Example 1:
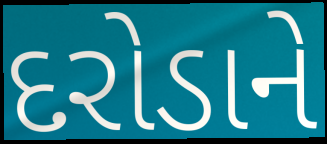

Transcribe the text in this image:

દરોડાને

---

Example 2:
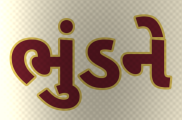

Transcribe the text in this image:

ભુંડને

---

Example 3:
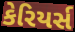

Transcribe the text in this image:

કેરિયર્સ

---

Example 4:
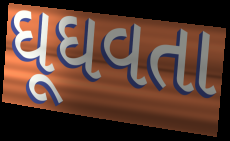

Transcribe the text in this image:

ઘૂઘવતા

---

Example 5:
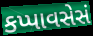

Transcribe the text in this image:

કપ્પાવસેસં